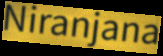
Niranjana